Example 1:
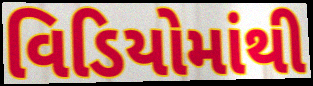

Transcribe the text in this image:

વિડિયોમાંથી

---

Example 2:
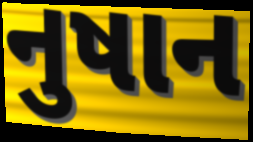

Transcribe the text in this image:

નુષાન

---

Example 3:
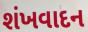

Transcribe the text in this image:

શંખવાદન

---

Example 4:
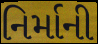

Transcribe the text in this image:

નિર્માની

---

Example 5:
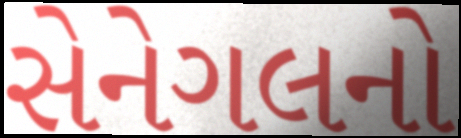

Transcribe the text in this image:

સેનેગલનો